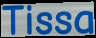
Tissa